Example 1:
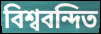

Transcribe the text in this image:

বিশ্ববন্দিত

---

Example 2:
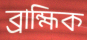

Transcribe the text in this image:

ব্ৰাহ্মিক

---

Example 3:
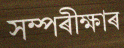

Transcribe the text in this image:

সম্পৰীক্ষাৰ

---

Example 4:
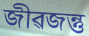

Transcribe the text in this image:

জীৱজন্তু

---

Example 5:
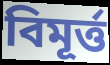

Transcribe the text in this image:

বিমূৰ্ত্ত